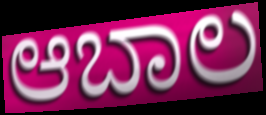
ಆಬಾಲ